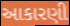
આકારણી